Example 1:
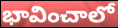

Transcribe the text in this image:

భావించాలో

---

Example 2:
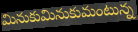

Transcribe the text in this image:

మినుకుమినుకుమంటున్న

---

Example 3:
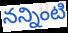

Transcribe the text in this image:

నన్నింటి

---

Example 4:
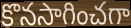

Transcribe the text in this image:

కొనసాగించగా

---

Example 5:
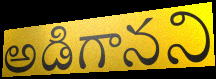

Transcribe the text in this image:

అడిగానని